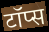
टॉप्स